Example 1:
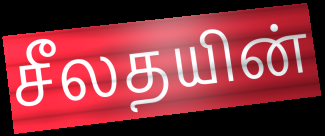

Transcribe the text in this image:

சீலதயின்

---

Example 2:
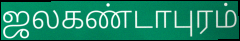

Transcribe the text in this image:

ஜலகண்டாபுரம்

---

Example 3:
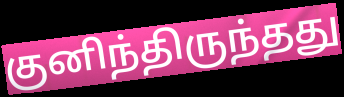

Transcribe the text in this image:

குனிந்திருந்தது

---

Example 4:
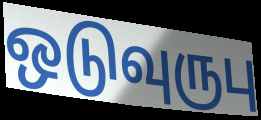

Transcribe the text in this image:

ஒடுவுருபு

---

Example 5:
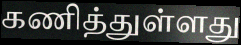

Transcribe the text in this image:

கணித்துள்ளது